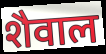
शैवाल